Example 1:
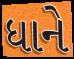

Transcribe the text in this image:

ધાને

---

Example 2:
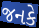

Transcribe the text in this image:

જનકે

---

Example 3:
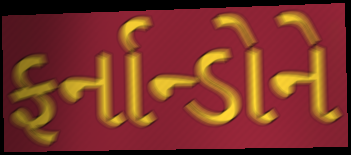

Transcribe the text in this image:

ફર્નાન્ડોને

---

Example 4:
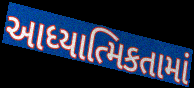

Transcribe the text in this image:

આધ્યાત્મિકતામાં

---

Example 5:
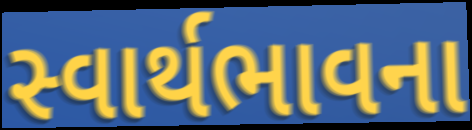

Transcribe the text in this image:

સ્વાર્થભાવના